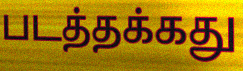
படத்தக்கது